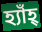
হ্যাঁহ্